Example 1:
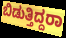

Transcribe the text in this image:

ಬಿಡುತ್ತಿದ್ದರಾ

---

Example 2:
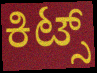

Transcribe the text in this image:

ಕಿಟ್ಸ್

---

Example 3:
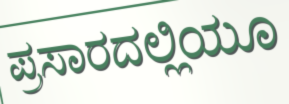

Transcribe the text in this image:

ಪ್ರಸಾರದಲ್ಲಿಯೂ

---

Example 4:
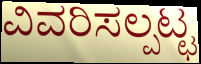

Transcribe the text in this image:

ವಿವರಿಸಲ್ಪಟ್ಟ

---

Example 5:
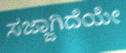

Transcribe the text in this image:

ಸಜ್ಜಾಗಿದೆಯೇ